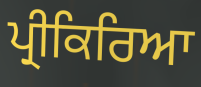
ਪ੍ਰੀਕਿਰਿਆ